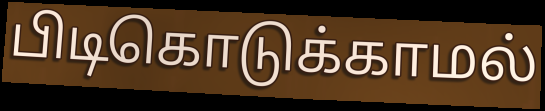
பிடிகொடுக்காமல்